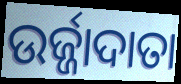
ଉର୍ଜ୍ଜାଦାତା